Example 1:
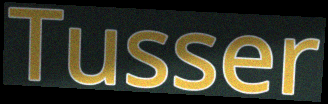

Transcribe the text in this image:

Tusser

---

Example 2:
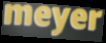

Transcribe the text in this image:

meyer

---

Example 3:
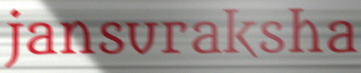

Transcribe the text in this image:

jansuraksha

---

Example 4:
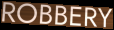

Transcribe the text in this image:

ROBBERY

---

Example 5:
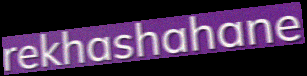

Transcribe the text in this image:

rekhashahane